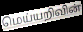
மெய்யறிவின்